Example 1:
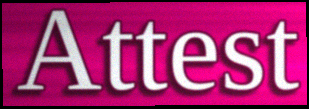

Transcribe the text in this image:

Attest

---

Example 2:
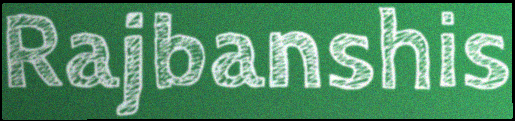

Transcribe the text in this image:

Rajbanshis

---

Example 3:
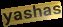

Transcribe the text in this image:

yashas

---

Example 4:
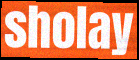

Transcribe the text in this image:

sholay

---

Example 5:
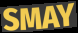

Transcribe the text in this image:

SMAY